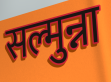
सल्मुन्ना